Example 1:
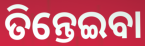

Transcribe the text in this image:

ତିନ୍ତେଇବା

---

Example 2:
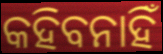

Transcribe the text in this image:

କହିବନାହିଁ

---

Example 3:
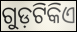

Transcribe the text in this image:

ଗୁଡ଼ଟିକିଏ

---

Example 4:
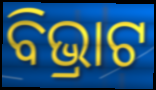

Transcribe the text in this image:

ବିଭ୍ରାଟ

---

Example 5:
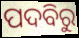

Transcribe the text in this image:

ପଦବିରୁ